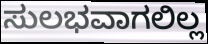
ಸುಲಭವಾಗಲಿಲ್ಲ